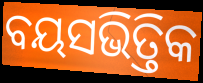
ବୟସଭିତ୍ତିକ